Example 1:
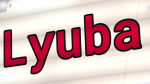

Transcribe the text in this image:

Lyuba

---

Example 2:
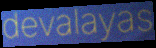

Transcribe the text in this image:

devalayas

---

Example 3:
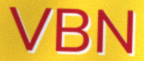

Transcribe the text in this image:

VBN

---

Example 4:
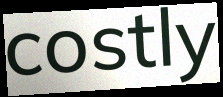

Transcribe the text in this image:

costly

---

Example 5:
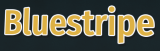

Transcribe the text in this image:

Bluestripe